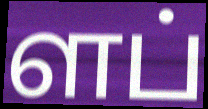
ளப்